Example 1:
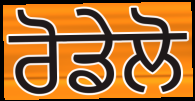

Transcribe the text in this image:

ਰੋਡੇਲੋ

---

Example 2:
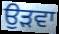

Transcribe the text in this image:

ਉੜਵਾ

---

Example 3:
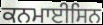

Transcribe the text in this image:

ਕਨਮਾਈਸਿਨ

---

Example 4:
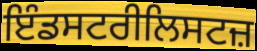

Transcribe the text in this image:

ਇੰਡਸਟਰੀਲਿਸਟਜ਼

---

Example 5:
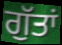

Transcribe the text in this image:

ਗੁੱਤਾਂ